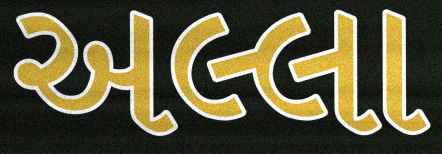
અલ્લા